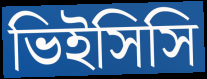
ভিইসিসি